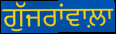
ਗੁੱਜਰਾਂਵਾਲ਼ਾ